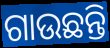
ଗାଉଛନ୍ତି